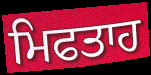
ਮਿਫਤਾਹ